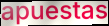
apuestas